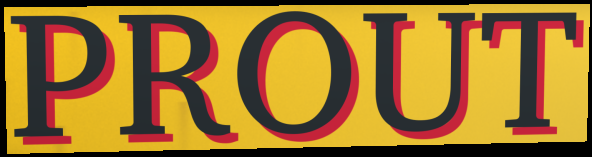
PROUT